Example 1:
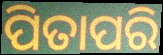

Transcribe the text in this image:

ପିତାପରି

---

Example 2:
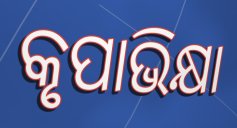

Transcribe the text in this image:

କୃପାଭିକ୍ଷା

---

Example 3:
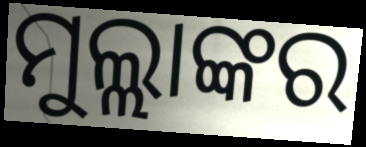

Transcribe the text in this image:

ମୁଲ୍ଲାଙ୍କର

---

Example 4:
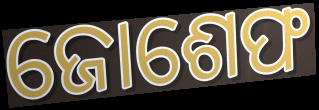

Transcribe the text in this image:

ଜୋଶେଫ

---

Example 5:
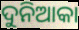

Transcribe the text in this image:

ଦୁନିଆକା